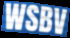
WSBV